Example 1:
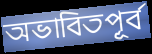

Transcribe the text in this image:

অভাবিতপূর্ব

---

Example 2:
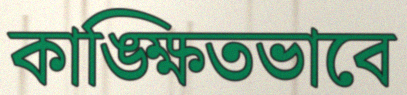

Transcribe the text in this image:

কাঙ্ক্ষিতভাবে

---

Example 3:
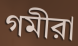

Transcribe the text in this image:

গমীরা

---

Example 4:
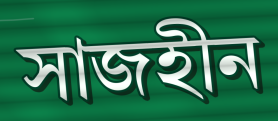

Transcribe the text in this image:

সাজহীন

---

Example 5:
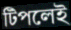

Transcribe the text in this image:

টিপলেই